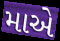
માએ